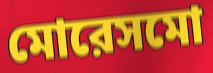
মোরেসমো